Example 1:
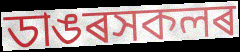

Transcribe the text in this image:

ডাঙৰসকলৰ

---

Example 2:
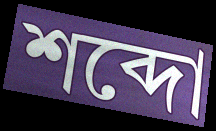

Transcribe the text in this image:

শব্দো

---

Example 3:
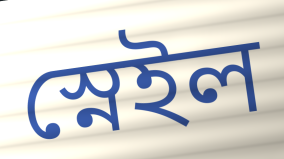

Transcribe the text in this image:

স্নেইল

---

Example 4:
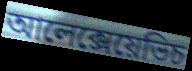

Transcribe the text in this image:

আলেক্সেয়েভিচ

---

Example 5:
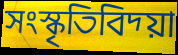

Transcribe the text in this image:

সংস্কৃতিবিদ্য়া